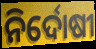
ନିର୍ଦୋଷୀ